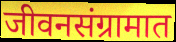
जीवनसंग्रामात